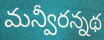
మన్వీరన్నథ